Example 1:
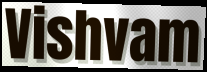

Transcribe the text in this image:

Vishvam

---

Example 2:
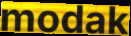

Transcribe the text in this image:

modak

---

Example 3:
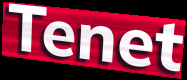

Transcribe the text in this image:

Tenet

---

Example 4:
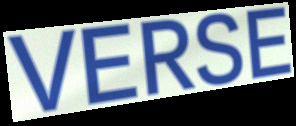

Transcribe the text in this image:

VERSE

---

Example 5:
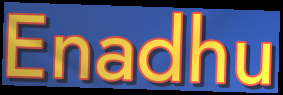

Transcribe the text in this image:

Enadhu